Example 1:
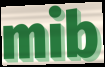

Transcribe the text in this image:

mib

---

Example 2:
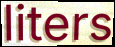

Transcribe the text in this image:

liters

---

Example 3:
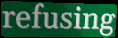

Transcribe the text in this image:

refusing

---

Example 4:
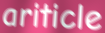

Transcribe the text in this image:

ariticle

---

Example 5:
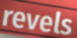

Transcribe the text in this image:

revels